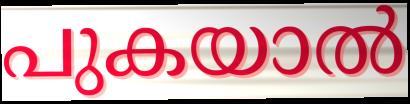
പുകയാൽ